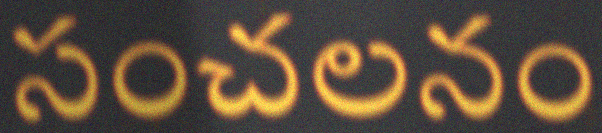
సంచలనం